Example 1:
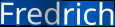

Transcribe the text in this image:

Fredrich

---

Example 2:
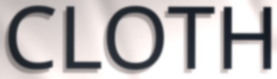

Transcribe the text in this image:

CLOTH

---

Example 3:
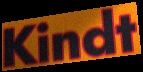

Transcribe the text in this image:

Kindt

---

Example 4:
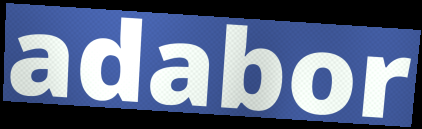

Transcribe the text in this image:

adabor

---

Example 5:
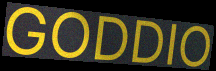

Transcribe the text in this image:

GODDIO